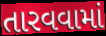
તારવવામાં